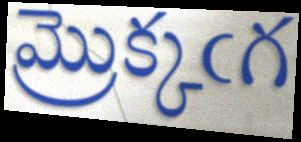
మ్రొక్కఁగ